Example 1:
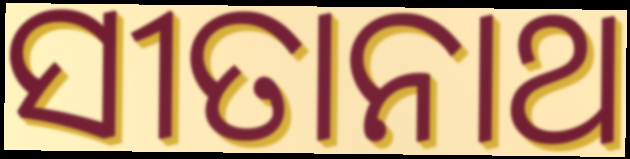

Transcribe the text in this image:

ସୀତାନାଥ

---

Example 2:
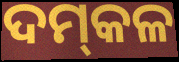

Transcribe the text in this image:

ଦମ୍‌କଳ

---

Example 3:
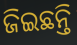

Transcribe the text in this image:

ଜିଇଛନ୍ତି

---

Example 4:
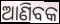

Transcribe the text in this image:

ଆଣିବକ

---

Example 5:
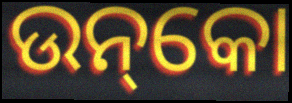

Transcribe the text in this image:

ଉନ୍‌କୋ